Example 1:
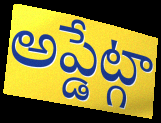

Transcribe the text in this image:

అప్డేట్గా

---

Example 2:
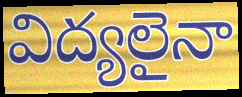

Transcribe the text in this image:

విద్యలైనా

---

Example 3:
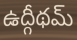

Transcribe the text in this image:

ఉద్గీథమ్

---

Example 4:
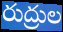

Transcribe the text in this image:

రుద్రుల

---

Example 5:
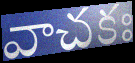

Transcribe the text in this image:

వాచకః